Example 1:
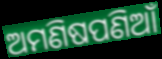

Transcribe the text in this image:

ଅମଣିଷପଣିଆଁ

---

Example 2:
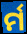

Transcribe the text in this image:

ର୍ମ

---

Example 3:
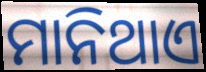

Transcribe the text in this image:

ମାନିଥାଏ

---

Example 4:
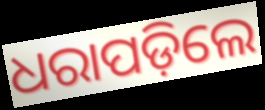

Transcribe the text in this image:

ଧରାପଡ଼ିଲେ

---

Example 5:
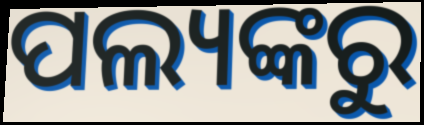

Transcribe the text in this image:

ପଲ୍ୟଙ୍କରୁ